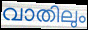
വാതിലും